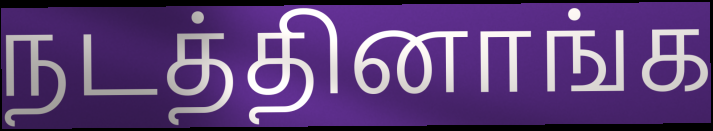
நடத்தினாங்க